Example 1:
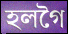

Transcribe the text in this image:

হলগৈ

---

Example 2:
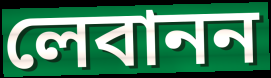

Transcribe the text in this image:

লেবানন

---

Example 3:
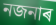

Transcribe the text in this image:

নজনাৰ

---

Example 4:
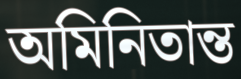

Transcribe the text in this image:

অমিনিতান্ত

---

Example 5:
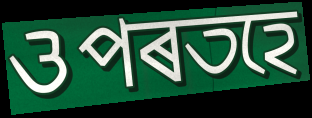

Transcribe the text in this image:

ওপৰতহে